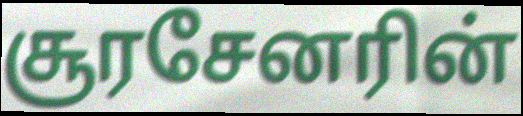
சூரசேனரின்